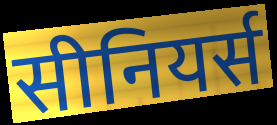
सीनियर्स